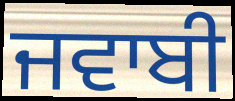
ਜਵਾਬੀ